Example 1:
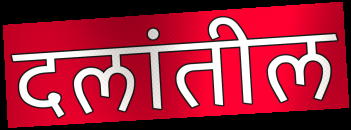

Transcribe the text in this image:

दलांतील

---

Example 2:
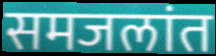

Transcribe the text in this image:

समजलांत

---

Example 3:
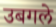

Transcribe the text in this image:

उबगले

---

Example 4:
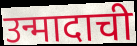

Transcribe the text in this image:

उन्मादाची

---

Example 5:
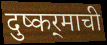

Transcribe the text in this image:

दुष्कर्माची